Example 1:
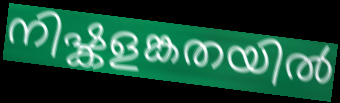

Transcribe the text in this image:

നിഷ്കളങ്കതയിൽ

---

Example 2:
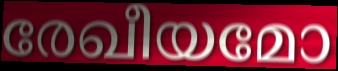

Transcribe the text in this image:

രേഖീയമോ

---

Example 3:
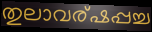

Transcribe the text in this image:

തുലാവര്ഷപ്പച്ച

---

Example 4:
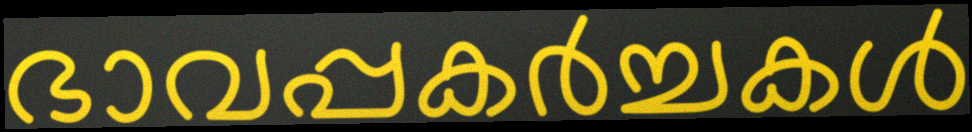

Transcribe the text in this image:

ഭാവപ്പകർച്ചകൾ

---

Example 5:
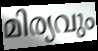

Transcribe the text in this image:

മിര്യവും